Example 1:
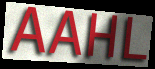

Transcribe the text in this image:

AAHL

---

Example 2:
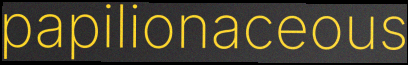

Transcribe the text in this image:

papilionaceous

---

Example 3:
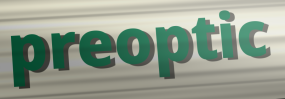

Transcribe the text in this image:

preoptic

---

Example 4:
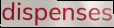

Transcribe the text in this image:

dispenses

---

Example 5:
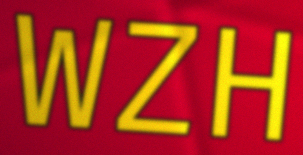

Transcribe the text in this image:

WZH